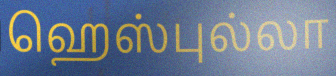
ஹெஸ்புல்லா